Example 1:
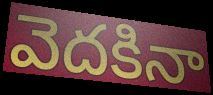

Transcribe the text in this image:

వెదకినా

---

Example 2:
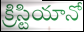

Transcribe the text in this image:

క్రిస్టియానో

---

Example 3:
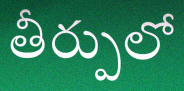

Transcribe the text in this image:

తీర్పులో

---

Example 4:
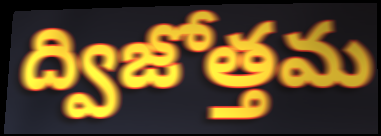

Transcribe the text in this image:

ద్విజోత్తమ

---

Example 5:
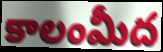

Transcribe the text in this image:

కాలంమీద